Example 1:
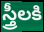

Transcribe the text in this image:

స్త్రీలకి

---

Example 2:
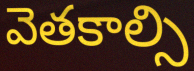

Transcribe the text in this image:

వెతకాల్సి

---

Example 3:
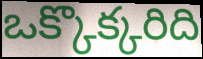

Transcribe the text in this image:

ఒక్కొక్కరిది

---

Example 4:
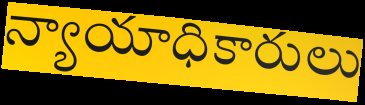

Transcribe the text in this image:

న్యాయాధికారులు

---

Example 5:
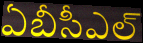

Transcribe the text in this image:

ఏబీసీఎల్